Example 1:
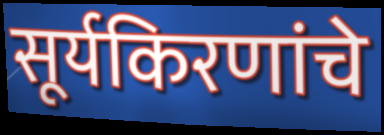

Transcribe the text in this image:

सूर्यकिरणांचे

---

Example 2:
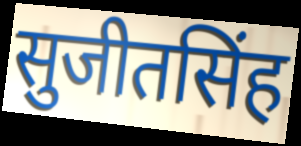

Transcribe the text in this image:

सुजीतसिंह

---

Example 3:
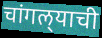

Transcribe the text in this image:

चांगल्याची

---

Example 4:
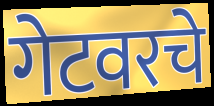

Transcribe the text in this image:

गेटवरचे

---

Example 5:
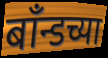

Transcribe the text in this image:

बाँन्डच्या